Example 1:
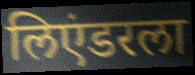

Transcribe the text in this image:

लिएंडरला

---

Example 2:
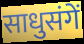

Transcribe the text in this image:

साधुसंगें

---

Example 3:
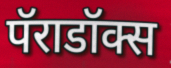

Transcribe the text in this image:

पॅराडॉक्स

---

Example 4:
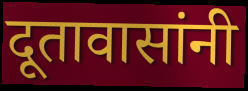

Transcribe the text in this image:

दूतावासांनी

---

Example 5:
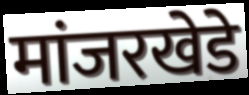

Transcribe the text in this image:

मांजरखेडे